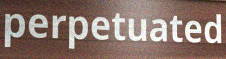
perpetuated